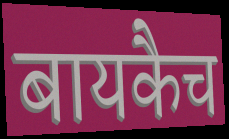
बायकैच